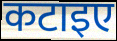
कटाइए